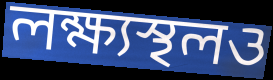
লক্ষ্যস্থলও